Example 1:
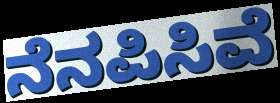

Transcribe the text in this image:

ನೆನಪಿಸಿವೆ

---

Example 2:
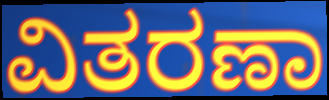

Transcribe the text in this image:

ವಿತರಣಾ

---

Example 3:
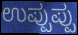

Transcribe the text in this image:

ಉಪ್ಪುಪ್ಪು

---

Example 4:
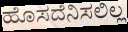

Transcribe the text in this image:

ಹೊಸದೆನಿಸಲಿಲ್ಲ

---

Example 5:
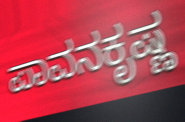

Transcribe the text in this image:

ಪಾವನಕೃಷ್ಣ